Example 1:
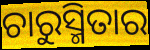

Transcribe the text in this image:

ଚାରୁସ୍ମିତାର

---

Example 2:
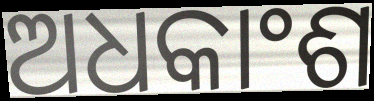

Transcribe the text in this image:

ଅଧକାଂଶ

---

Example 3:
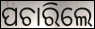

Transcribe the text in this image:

ପଚାରିଲେ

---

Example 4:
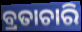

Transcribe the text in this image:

ବ୍ରତାଚାରି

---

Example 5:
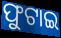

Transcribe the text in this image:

ଫୁଟାଇ